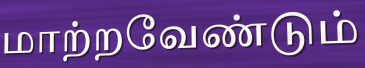
மாற்றவேண்டும்